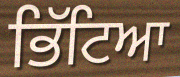
ਭਿੱਟਿਆ